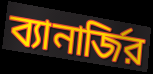
ব্যানার্জির